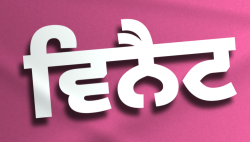
ਵਿਨੈਟ